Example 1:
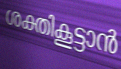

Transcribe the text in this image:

ശക്തികൂട്ടാൻ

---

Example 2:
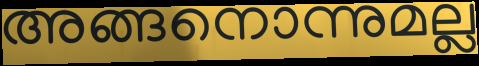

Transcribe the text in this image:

അങ്ങനൊന്നുമല്ല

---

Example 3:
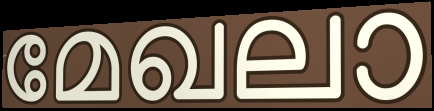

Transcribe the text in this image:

മേഖലാ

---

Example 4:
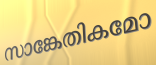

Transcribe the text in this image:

സാങ്കേതികമോ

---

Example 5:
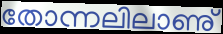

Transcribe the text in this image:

തോന്നലിലാണു്